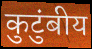
कुटुंबीय